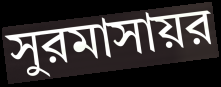
সুরমাসায়র